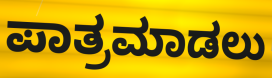
ಪಾತ್ರಮಾಡಲು